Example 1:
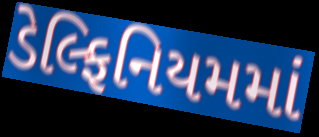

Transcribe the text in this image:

ડેલ્ફિનિયમમાં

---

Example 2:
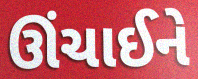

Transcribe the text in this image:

ઊંચાઈને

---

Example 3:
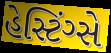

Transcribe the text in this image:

હેસ્ટિંગ્સે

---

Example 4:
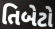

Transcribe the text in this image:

તિબેટો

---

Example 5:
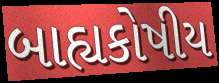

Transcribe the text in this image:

બાહ્યકોષીય